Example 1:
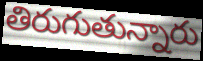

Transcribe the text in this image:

తిరుగుతున్నారు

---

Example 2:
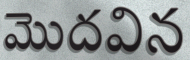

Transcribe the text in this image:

మొదవిన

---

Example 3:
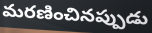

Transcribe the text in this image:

మరణించినప్పుడు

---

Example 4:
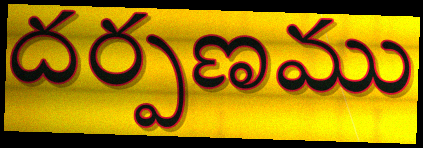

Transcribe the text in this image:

దర్పణము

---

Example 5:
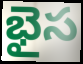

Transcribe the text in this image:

భైస